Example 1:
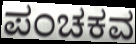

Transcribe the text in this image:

ಪಂಚಕವ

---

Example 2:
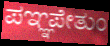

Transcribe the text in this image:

ಪಞ್ಞಪೇತುಂ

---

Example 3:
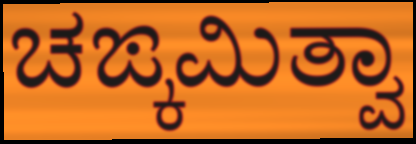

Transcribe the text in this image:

ಚಙ್ಕಮಿತ್ವಾ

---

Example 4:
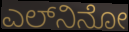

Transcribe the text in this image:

ಎಲ್‍ನಿನೋ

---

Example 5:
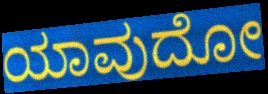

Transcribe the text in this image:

ಯಾವುದೋ